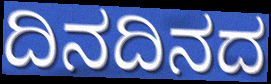
ದಿನದಿನದ